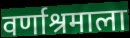
वर्णाश्रमाला